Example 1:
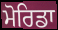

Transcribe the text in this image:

ਮੋਰਿਡਾ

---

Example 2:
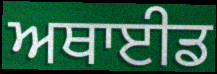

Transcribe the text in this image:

ਅਥਾਈਡ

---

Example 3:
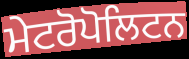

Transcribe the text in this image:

ਮੇਟਰੋਪੋਲਿਟਨ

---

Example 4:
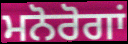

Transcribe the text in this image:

ਮਨੋਰੋਗਾਂ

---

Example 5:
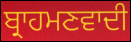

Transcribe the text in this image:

ਬ੍ਰਾਹਮਣਵਾਦੀ